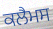
ਕਲੈਮਸ